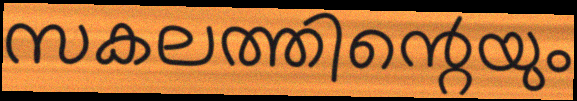
സകലത്തിന്റെയും